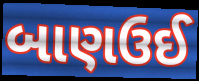
બાણઉઈ